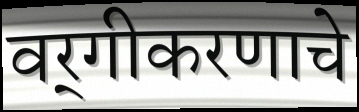
वर्गीकरणाचे